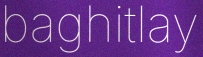
baghitlay